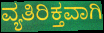
ವ್ಯತಿರಿಕ್ತವಾಗಿ